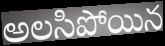
అలసిపోయిన